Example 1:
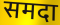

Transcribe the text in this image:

समदा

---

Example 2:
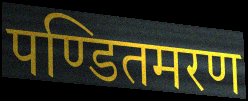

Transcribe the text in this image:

पण्डितमरण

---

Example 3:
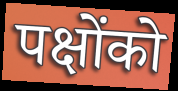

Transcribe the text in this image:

पक्षोंको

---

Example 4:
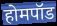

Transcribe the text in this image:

होमपॉड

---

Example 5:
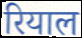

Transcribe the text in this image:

रियाल